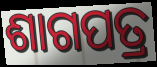
ଶାଗପତ୍ର